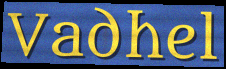
Vadhel